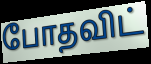
போதவிட்